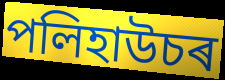
পলিহাউচৰ